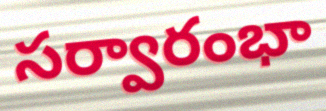
సర్వారంభా